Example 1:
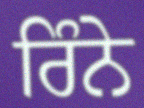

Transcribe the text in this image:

ਰਿੰਨੇ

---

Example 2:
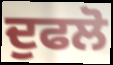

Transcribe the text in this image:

ਦੁਫਲੋ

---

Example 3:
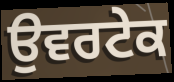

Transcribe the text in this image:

ਉਵਰਟੇਕ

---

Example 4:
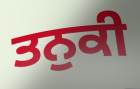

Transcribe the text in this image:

ਤਨੁਕੀ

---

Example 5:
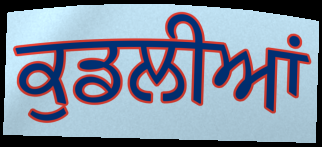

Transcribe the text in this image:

ਕੁਡਲੀਆਂ